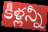
కీళ్లన్నీ